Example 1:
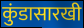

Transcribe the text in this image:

कुंडासारखी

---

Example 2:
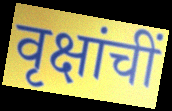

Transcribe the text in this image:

वृक्षांचीं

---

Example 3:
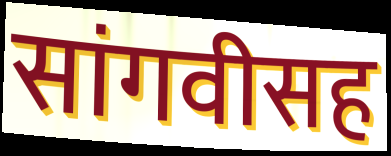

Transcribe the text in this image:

सांगवीसह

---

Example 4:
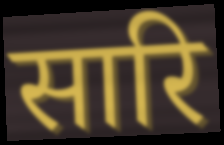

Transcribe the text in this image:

सारि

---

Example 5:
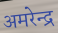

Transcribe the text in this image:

अमरेन्द्र